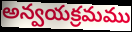
అన్వయక్రమము